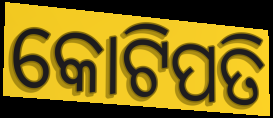
କୋଟିପତି